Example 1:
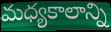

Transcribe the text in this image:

మధ్యకాలాన్ని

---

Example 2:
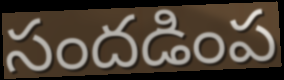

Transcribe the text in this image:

సందడింప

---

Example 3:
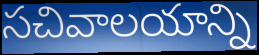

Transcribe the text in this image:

సచివాలయాన్ని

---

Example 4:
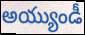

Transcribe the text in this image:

అయ్యుండీ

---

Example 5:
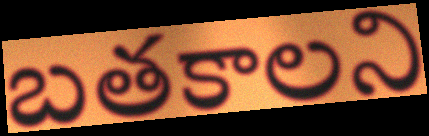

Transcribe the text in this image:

బతకాలని